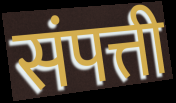
संपत्ती